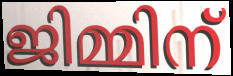
ജിമ്മിന്